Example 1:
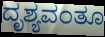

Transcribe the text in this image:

ದೃಶ್ಯವಂತೂ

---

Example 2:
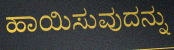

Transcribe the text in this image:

ಹಾಯಿಸುವುದನ್ನು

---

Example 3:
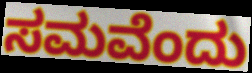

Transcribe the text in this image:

ಸಮವೆಂದು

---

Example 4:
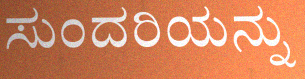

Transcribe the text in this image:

ಸುಂದರಿಯನ್ನು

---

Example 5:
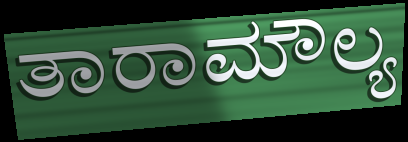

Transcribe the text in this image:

ತಾರಾಮೌಲ್ಯ